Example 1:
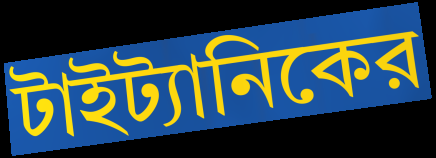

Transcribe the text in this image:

টাইট্যানিকের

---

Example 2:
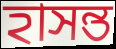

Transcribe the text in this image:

হাসন্ত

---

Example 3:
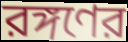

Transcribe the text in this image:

রঙ্গণের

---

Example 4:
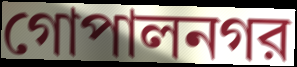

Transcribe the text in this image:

গোপালনগর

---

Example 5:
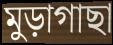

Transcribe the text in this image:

মুড়াগাছা